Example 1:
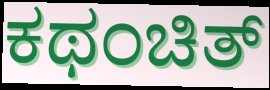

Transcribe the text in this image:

ಕಥಂಚಿತ್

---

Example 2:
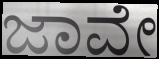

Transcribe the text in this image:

ಜಾವೇ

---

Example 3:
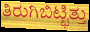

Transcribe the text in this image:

ತಿರುಗಿಬಿಟ್ಟಿತ್ತು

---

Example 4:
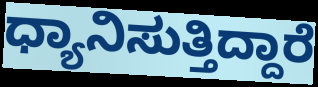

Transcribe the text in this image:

ಧ್ಯಾನಿಸುತ್ತಿದ್ದಾರೆ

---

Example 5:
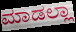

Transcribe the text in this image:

ಮಾಡಲ್ಲಾ